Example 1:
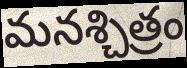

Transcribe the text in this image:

మనశ్చిత్రం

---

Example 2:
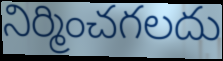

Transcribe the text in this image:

నిర్మించగలదు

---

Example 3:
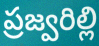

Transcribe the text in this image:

ప్రజ్వరిల్లి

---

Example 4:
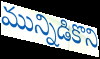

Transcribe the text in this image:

మున్నిడికొని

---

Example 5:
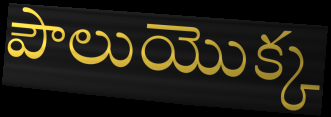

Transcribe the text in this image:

పౌలుయొక్క